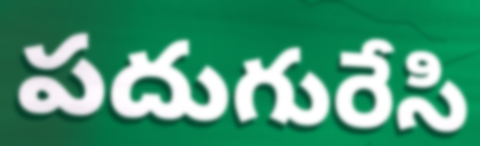
పదుగురేసి